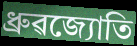
ধ্ৰুৱজ্যোতি